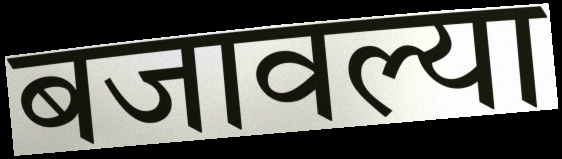
बजावल्या